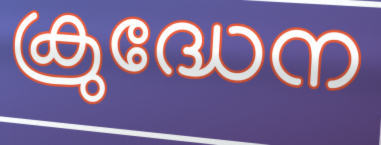
ക്രുദ്ധേന